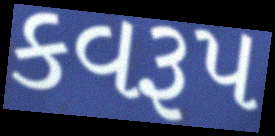
કવરૂપ